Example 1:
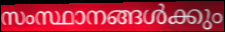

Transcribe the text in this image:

സംസ്ഥാനങ്ങൾക്കും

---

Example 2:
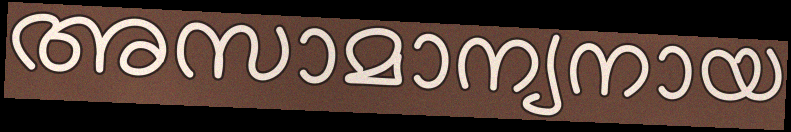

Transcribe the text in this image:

അസാമാന്യനായ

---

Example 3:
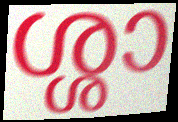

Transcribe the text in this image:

ശ്ശാ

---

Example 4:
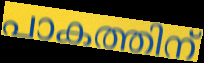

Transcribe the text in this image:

പാകത്തിന്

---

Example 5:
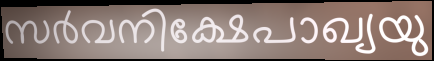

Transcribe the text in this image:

സർവനിക്ഷേപാഖ്യയു